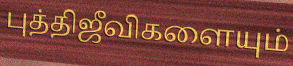
புத்திஜீவிகளையும்